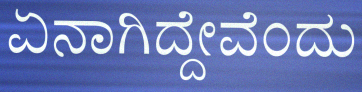
ಏನಾಗಿದ್ದೇವೆಂದು